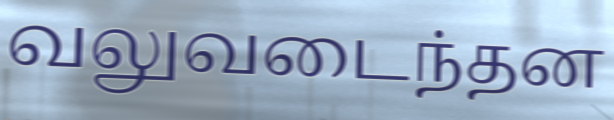
வலுவடைந்தன